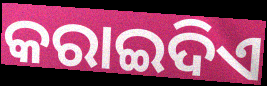
କରାଇଦିଏ